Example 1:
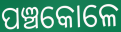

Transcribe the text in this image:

ପଞ୍ଚକୋଳେ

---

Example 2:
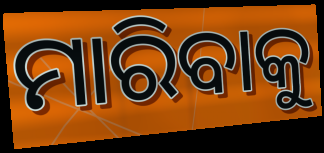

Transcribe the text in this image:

ମାରିବାକୁ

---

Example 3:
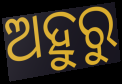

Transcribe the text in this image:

ଅହୁରୁ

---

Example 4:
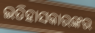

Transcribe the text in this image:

ଇତିହାସକାରଙ୍କର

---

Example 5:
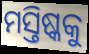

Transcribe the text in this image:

ମସ୍ତିଷ୍କକୁ